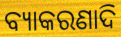
ବ୍ୟାକରଣାଦି